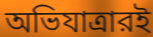
অভিযাত্রারই